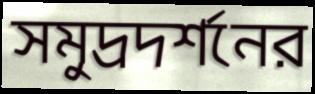
সমুদ্রদর্শনের